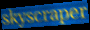
skyscraper